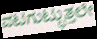
ವಟಗುಟ್ಟುತ್ತಲೇ